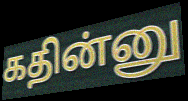
கதின்னு